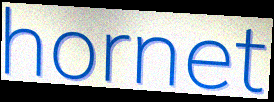
hornet